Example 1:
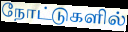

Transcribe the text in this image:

நோட்டுகளில்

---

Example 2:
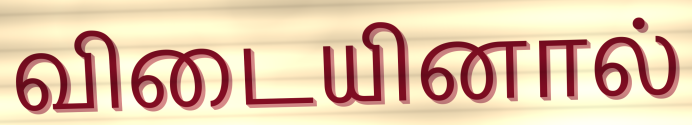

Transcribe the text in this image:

விடையினால்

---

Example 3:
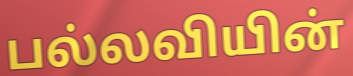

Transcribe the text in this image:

பல்லவியின்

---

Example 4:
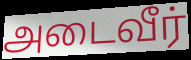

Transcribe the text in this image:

அடைவீர்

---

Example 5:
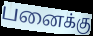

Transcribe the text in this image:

பனைக்கு